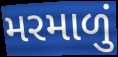
મરમાળું